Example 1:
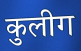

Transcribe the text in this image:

कुलीग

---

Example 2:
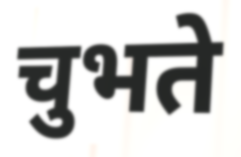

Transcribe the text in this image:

चुभते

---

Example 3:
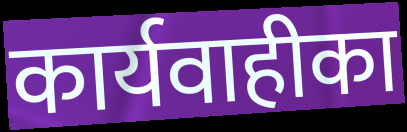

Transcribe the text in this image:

कार्यवाहीका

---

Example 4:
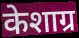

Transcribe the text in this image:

केशाग्र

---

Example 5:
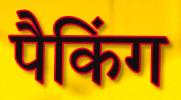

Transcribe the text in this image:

पैकिंग